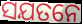
ସଯତନେ